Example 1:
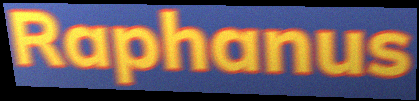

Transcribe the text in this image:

Raphanus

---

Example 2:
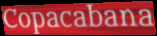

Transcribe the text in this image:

Copacabana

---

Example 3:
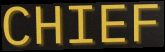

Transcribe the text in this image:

CHIEF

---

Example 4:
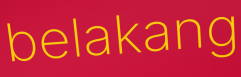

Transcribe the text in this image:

belakang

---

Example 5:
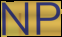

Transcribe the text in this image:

NP